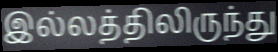
இல்லத்திலிருந்து